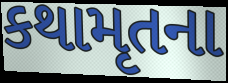
કથામૃતના